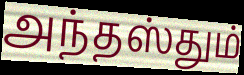
அந்தஸ்தும்